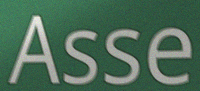
Asse